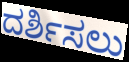
ದರ್ಶಿಸಲು